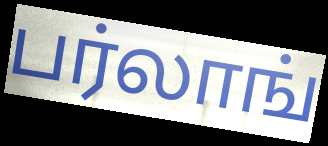
பர்லாங்